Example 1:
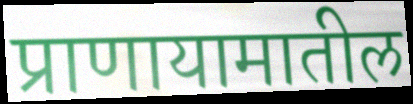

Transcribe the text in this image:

प्राणायामातील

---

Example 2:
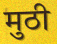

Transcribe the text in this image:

मुठी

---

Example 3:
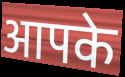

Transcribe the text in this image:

आपके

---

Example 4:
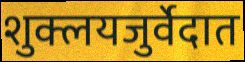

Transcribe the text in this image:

शुक्लयजुर्वेदात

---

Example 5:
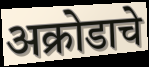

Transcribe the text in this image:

अक्रोडाचे